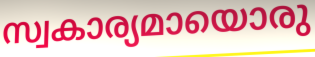
സ്വകാര്യമായൊരു